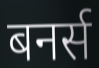
बनर्स